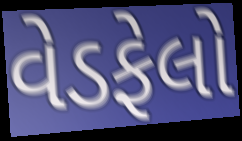
વેડફેલો